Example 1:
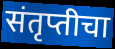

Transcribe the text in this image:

संतृप्तीचा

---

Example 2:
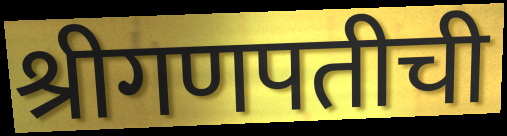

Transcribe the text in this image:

श्रीगणपतीची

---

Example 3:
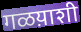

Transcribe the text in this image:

गळय़ाशी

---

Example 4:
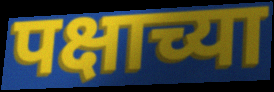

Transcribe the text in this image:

पक्षाच्या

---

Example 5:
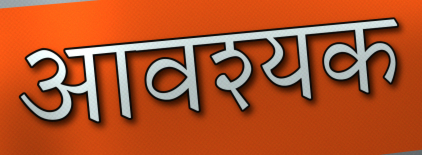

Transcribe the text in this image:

आवश्यक